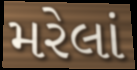
મરેલાં